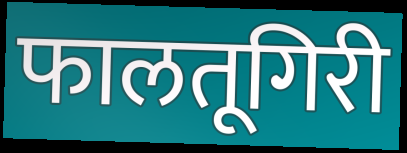
फालतूगिरी